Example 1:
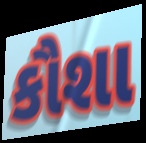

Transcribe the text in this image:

કૌશા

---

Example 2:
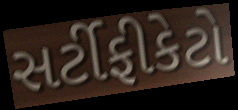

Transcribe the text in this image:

સર્ટીફીકેટો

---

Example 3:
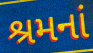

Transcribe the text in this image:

શ્રમનાં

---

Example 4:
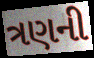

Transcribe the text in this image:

ત્રણની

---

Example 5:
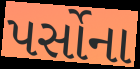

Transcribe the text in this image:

પર્સોના